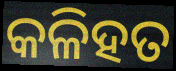
କଳିହତ